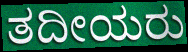
ತದೀಯರು